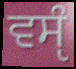
ਵਸੵੰ